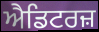
ਐਡਿਟਰਜ਼